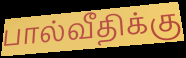
பால்வீதிக்கு